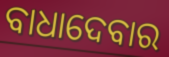
ବାଧାଦେବାର